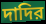
দাদির